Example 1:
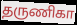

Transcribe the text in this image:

தருணிகா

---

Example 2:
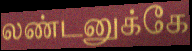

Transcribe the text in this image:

லண்டனுக்கே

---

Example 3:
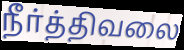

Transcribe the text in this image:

நீர்த்திவலை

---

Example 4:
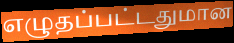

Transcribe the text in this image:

எழுதப்பட்டதுமான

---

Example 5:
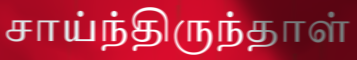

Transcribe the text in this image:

சாய்ந்திருந்தாள்